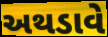
અથડાવે